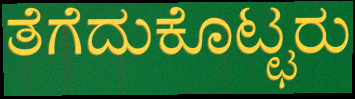
ತೆಗೆದುಕೊಟ್ಟರು